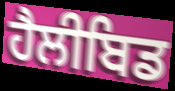
ਹੈਲੀਬਿਡ